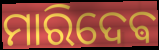
ମାରିଦେଵ